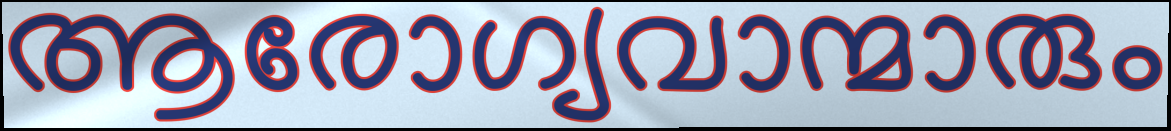
ആരോഗ്യവാന്മാരും